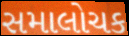
સમાલોચક